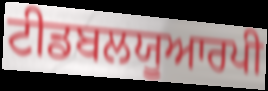
ਟੀਡਬਲਯੂਆਰਪੀ